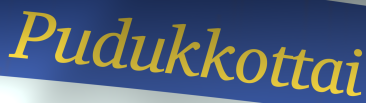
Pudukkottai